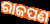
ରାଜପଣ